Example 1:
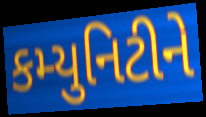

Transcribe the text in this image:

કમ્યુનિટીને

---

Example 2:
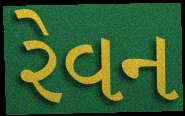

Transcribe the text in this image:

રેવન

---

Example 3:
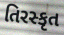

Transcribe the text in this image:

તિરસ્કૃત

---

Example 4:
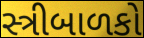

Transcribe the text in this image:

સ્ત્રીબાળકો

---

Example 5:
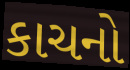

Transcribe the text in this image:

કાચનો